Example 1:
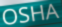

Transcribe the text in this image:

OSHA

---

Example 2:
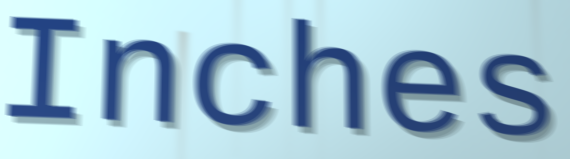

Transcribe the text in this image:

Inches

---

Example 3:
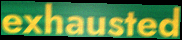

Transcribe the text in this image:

exhausted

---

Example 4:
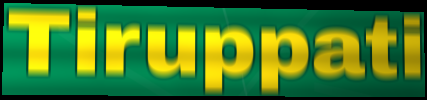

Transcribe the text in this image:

Tiruppati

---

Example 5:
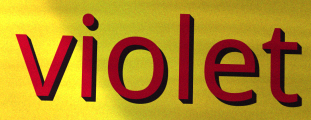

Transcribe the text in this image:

violet